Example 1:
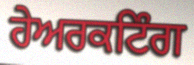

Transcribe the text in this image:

ਹੇਅਰਕਟਿੰਗ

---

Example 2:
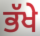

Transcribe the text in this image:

ਭੱਖੇ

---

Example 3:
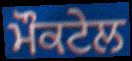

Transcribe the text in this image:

ਮੌਕਟੇਲ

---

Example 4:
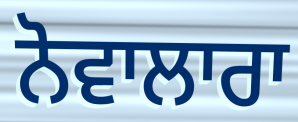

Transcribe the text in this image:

ਨੋਵਾਲਾਰਾ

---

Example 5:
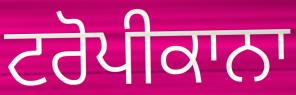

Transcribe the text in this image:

ਟਰੋਪੀਕਾਨਾ